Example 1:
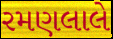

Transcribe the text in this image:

રમણલાલે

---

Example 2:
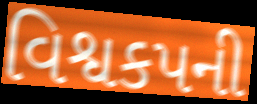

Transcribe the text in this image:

વિશ્વકપની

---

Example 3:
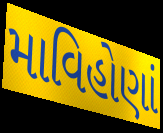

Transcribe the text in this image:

માવિહોણાં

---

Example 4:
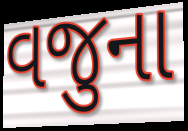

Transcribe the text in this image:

વજુના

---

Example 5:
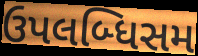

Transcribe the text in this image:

ઉપલબ્ધિસમ